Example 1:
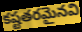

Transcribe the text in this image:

కష్టతరమైనవి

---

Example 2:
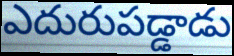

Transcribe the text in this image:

ఎదురుపడ్డాడు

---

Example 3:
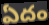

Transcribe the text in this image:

ఏదం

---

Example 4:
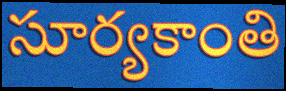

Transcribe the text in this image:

సూర్యకాంతి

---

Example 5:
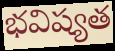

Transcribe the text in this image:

భవిష్యత